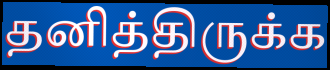
தனித்திருக்க